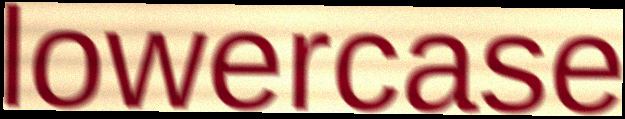
lowercase